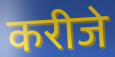
करीजे